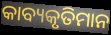
କାବ୍ୟକୃତିମାନ